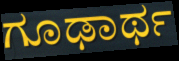
ಗೂಢಾರ್ಥ